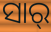
ସାର୍